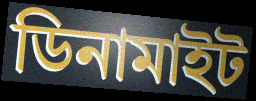
ডিনামাইট